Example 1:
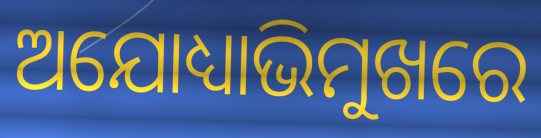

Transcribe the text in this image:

ଅଯୋଧ୍ୟାଭିମୁଖରେ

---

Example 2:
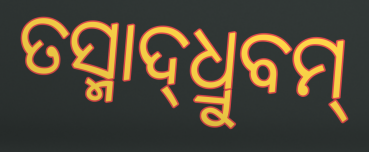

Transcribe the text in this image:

ତସ୍ମାଦ୍‌ଧ୍ରୁବମ୍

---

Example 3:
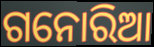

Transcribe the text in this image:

ଗନୋରିଆ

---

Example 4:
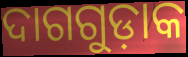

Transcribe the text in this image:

ଦାଗଗୁଡ଼ାକ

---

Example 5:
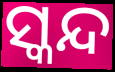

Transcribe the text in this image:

ସ୍କନ୍ଦ